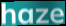
haze